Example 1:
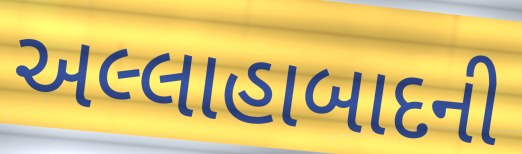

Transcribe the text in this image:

અલ્લાહાબાદની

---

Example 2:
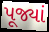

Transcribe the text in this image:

પૂજ્યાં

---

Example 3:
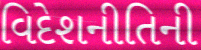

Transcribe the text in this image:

વિદેશનીતિની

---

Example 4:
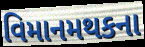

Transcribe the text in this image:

વિમાનમથકના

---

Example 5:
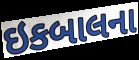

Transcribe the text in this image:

ઇકબાલના